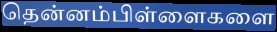
தென்னம்பிள்ளைகளை